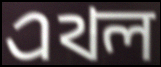
এথল